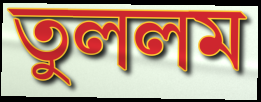
তুললম